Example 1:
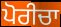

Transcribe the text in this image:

ਪੋਰੀਚਾ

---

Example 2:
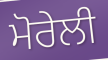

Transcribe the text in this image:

ਮੋਰੇਲੀ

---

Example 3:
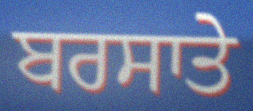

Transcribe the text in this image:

ਬਰਸਾਤੇ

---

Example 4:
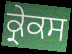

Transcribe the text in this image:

ਕ੍ਰੇਕਸ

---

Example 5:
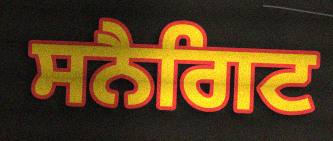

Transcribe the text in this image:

ਸਨੈਗਿਟ